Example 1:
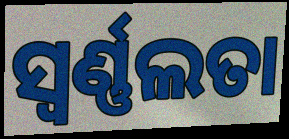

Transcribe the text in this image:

ସ୍ଵର୍ଣ୍ଣଲତା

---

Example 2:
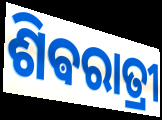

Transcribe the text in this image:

ଶିଵରାତ୍ରୀ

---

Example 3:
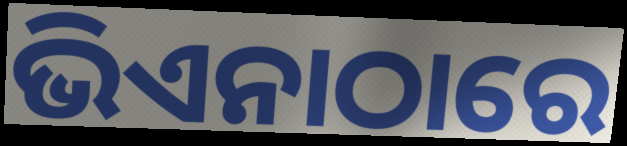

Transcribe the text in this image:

ଭିଏନାଠାରେ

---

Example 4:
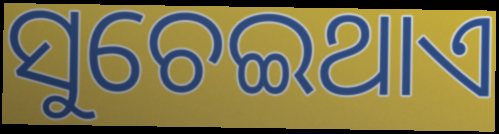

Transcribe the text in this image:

ସୁଚେଇଥାଏ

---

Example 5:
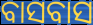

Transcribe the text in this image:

ବାସବାସ